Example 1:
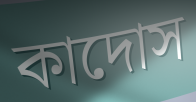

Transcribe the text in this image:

কাদোস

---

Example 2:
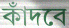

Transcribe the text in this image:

কাঁদবে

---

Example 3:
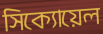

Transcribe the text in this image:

সিক্যোয়েল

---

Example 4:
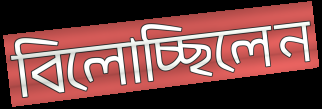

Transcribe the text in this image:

বিলোচ্ছিলেন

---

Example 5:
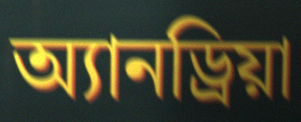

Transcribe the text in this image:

অ্যানড্রিয়া